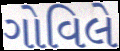
ગોવિલે